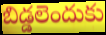
బిడ్డలెందుకు